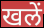
खलें